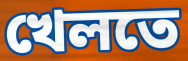
খেলতে